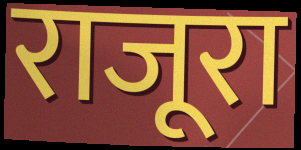
राजूरा